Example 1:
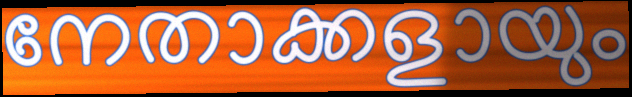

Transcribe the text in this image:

നേതാക്കളായും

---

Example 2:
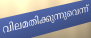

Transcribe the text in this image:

വിലമതിക്കുന്നുവെന്ന്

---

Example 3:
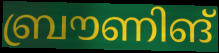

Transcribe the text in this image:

ബ്രൗണിങ്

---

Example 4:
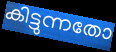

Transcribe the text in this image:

കിട്ടുന്നതോ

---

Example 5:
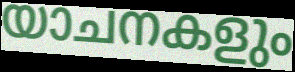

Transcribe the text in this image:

യാചനകളും